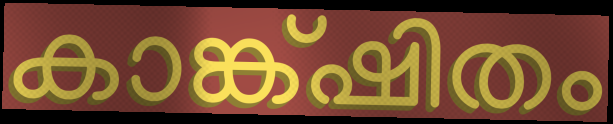
കാങ്ക്ഷിതം